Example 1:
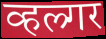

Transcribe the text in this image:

व्हल्गर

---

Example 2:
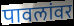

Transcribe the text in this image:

पावलांवर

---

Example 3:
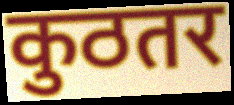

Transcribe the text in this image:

कुठतर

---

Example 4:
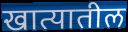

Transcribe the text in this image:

खात्यातील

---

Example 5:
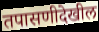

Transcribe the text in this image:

तपासणीदेखील